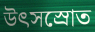
উৎসস্রোত